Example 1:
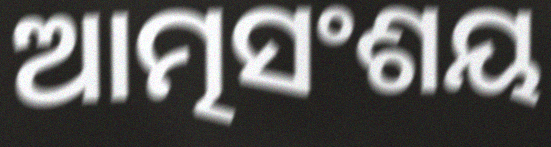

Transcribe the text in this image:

ଆତ୍ମସଂଶୟ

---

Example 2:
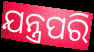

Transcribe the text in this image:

ଯନ୍ତ୍ରପରି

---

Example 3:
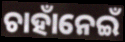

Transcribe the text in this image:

ଚାହାଁନେଇଁ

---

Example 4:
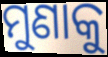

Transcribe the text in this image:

ମୁଣାକୁ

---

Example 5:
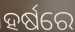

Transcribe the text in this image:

ହର୍ଷରେ